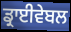
ਡ੍ਰਾਈਵੇਬਲ